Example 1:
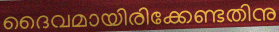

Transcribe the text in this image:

ദൈവമായിരിക്കേണ്ടതിനു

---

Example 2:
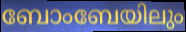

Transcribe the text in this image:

ബോംബേയിലും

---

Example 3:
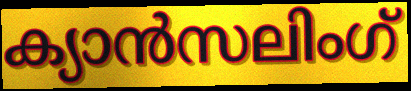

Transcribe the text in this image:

ക്യാൻസലിംഗ്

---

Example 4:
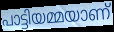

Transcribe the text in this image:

പാട്ടിയമ്മയാണ്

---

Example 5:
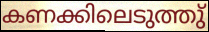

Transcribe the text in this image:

കണക്കിലെടുത്തു്